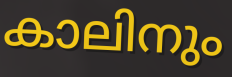
കാലിനും